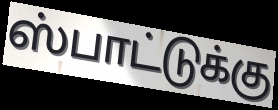
ஸ்பாட்டுக்கு